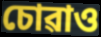
চোৱাও